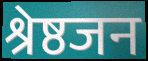
श्रेष्ठजन